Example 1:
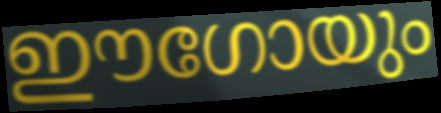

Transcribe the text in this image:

ഈഗോയും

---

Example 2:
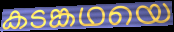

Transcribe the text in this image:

കടങ്കഥയെ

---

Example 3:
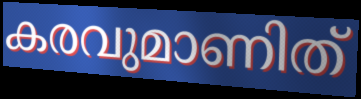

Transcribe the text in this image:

കരവുമാണിത്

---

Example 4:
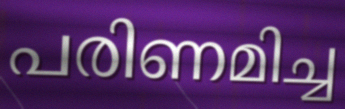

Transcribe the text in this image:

പരിണമിച്ച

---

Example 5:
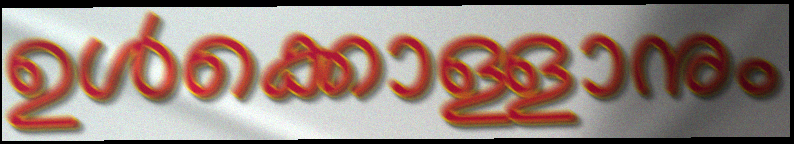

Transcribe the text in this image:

ഉൾക്കൊള്ളാനും